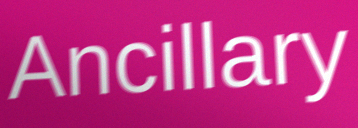
Ancillary